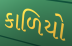
કાળિયો